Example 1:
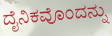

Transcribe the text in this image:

ದೈನಿಕವೊಂದನ್ನು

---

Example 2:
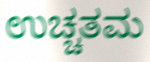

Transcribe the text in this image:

ಉಚ್ಚತಮ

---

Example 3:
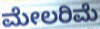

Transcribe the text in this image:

ಮೇಲರಿಮೆ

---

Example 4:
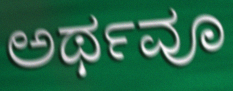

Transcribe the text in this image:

ಅರ್ಥವೂ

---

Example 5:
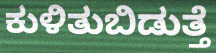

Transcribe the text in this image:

ಕುಳಿತುಬಿಡುತ್ತೆ